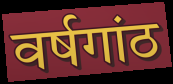
वर्षगांठ